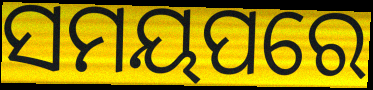
ସମୟପରେ